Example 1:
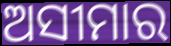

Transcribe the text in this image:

ଅସୀମାର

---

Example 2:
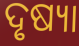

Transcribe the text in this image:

ଦୃଷ୍ୟା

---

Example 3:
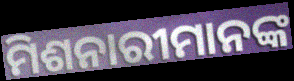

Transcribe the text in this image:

ମିଶନାରୀମାନଙ୍କ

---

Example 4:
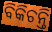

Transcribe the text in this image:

ବିକିଚନ୍ତି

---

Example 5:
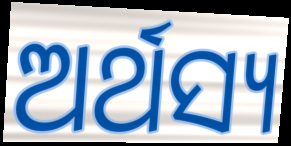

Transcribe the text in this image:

ଅର୍ଥସ୍ୟ